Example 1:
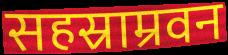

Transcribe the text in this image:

सहस्राम्रवन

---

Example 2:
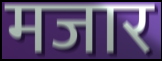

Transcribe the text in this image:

मजार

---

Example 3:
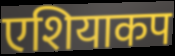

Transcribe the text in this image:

एशियाकप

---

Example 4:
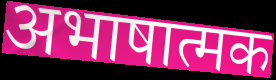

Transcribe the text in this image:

अभाषात्मक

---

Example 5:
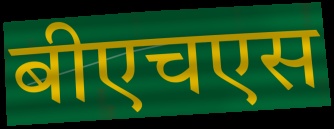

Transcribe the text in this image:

बीएचएस